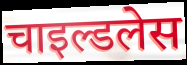
चाइल्डलेस